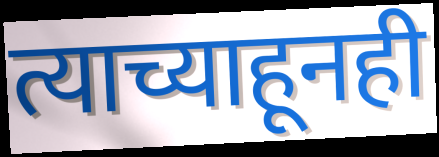
त्याच्याहूनही